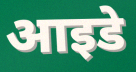
आइडे